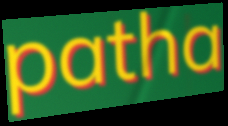
patha